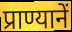
प्राण्यानें